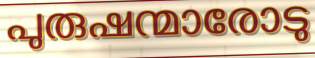
പുരുഷന്മാരോടു